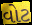
વોટ